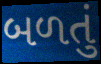
બળતું